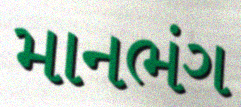
માનભંગ